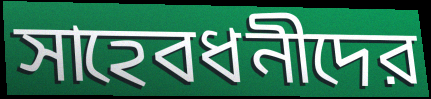
সাহেবধনীদের